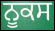
ਨੂਕਸ